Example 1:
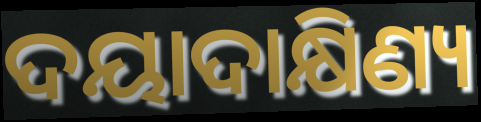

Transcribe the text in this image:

ଦୟାଦାକ୍ଷିଣ୍ୟ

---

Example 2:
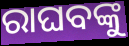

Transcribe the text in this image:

ରାଘବଙ୍କୁ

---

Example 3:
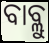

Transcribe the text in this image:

ବାବ୍ଲୁ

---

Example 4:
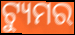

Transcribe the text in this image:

ଟ୍ୟୁମର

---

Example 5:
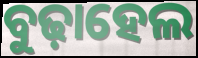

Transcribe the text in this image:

ବୁଢ଼ାହେଲ